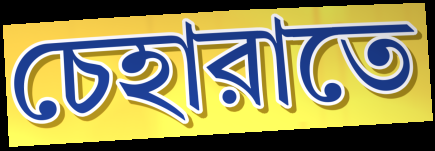
চেহারাতে